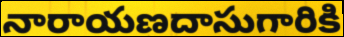
నారాయణదాసుగారికి